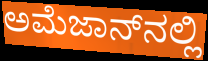
ಅಮೆಜಾನ್‌ನಲ್ಲಿ